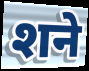
शने